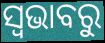
ସ୍ୱଭାବରୁ